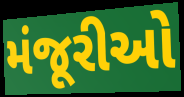
મંજૂરીઓ